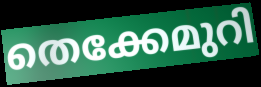
തെക്കേമുറി